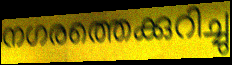
നഗരത്തെക്കുറിച്ചു